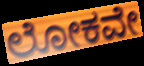
ಲೋಕವೇ